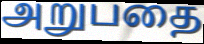
அறுபதை